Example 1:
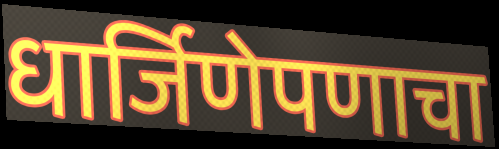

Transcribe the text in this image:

धार्जिणेपणाचा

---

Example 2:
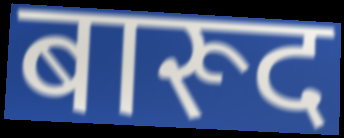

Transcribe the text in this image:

बारूद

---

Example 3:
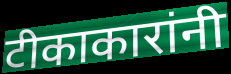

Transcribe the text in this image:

टीकाकारांनी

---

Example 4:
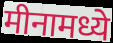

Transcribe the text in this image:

मीनामध्ये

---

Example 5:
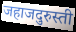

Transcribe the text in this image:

जहाजदुरुस्ती